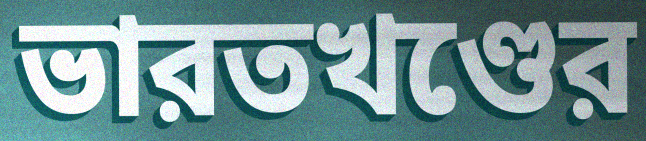
ভারতখণ্ডের